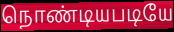
நொண்டியபடியே